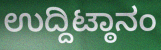
ಉದ್ದಿಟ್ಠಾನಂ